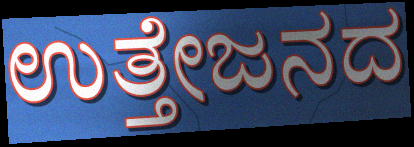
ಉತ್ತೇಜನದ